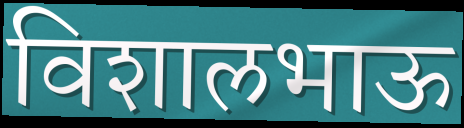
विशालभाऊ